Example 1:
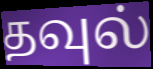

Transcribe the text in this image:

தவுல்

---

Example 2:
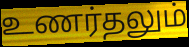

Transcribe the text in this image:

உணர்தலும்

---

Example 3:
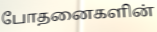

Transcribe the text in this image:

போதனைகளின்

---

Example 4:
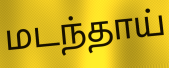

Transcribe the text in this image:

மடந்தாய்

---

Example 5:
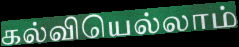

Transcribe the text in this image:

கல்வியெல்லாம்